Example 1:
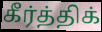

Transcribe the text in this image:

கீர்த்திக்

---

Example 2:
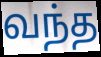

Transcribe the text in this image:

வந்த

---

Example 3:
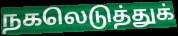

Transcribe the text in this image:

நகலெடுத்துக்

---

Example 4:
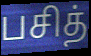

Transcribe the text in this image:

பசித்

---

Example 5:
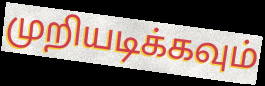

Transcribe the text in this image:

முறியடிக்கவும்